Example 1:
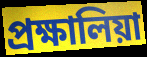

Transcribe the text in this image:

প্রক্ষালিয়া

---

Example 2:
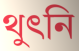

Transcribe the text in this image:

থুৎনি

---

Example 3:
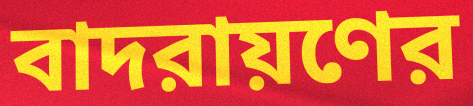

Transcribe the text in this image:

বাদরায়ণের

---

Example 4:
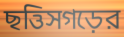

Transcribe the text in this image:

ছত্তিসগড়ের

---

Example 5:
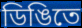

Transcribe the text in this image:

ডিঙিতে